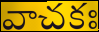
వాచకః